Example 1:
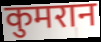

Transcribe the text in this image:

कुमरान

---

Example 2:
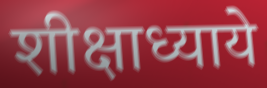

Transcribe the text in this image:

शीक्षाध्याये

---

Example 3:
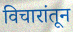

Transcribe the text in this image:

विचारांतून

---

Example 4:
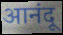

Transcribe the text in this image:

आनंदू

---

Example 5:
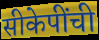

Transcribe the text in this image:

सीकेपींची